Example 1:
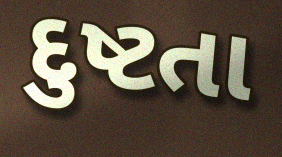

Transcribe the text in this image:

દુષ્ટતા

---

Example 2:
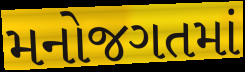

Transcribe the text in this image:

મનોજગતમાં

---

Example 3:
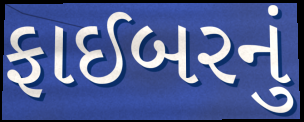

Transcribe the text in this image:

ફાઈબરનું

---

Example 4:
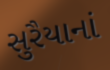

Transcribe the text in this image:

સુરૈયાનાં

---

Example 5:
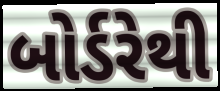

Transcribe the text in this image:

બોર્ડરેથી